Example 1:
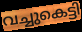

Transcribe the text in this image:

വച്ചുകെട്ടി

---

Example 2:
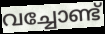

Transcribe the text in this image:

വച്ചോണ്ട്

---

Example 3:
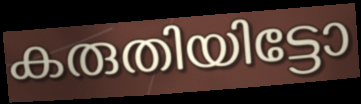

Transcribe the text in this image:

കരുതിയിട്ടോ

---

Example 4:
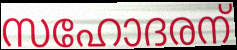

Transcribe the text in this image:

സഹോദരന്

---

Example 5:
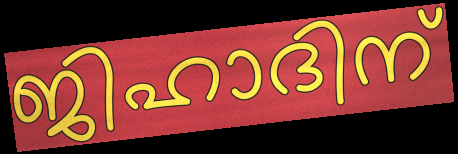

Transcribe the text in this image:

ജിഹാദിന്